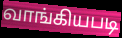
வாங்கியபடி